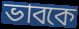
ভাবকে